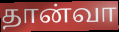
தான்வா